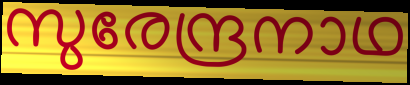
സുരേന്ദ്രനാഥ